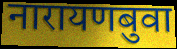
नारायणबुवा